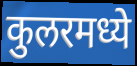
कुलरमध्ये